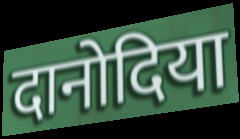
दानोदिया